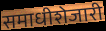
समाधीशेजारी